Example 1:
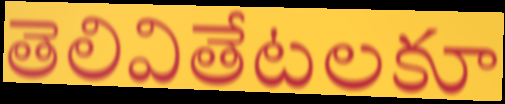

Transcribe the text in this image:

తెలివితేటలకూ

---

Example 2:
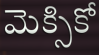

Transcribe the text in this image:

మెక్సికో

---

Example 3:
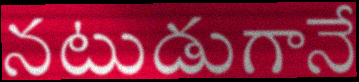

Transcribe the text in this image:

నటుడుగానే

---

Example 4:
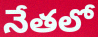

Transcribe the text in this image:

నేతలో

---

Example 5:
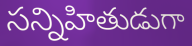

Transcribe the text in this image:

సన్నిహితుడుగా